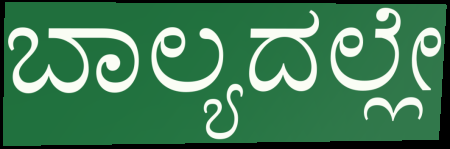
ಬಾಲ್ಯದಲ್ಲೇ